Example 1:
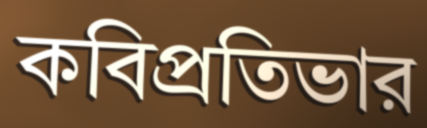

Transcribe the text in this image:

কবিপ্রতিভার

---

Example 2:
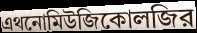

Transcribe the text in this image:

এথনোমিউজিকোলজির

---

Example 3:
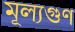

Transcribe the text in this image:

মূল্যগুণ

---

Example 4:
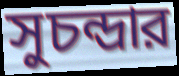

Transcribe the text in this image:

সুচন্দ্রার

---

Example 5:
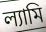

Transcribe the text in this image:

ল্যামি